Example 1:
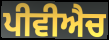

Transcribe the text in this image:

ਪੀਵੀਐਚ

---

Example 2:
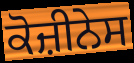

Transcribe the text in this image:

ਕੋਜ਼ੀਨੇਸ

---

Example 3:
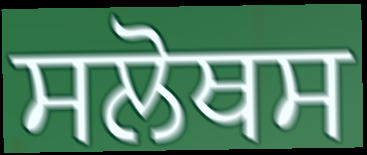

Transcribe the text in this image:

ਸਲੋਥਸ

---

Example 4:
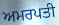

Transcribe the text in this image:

ਅਮਰਪਤੀ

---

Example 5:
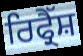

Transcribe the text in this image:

ਰਿਫ੍ਰੈੱਸ਼